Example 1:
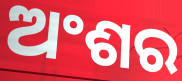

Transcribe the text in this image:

ଅଂଶର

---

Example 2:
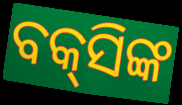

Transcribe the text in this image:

ବକ୍‌ସିଙ୍କ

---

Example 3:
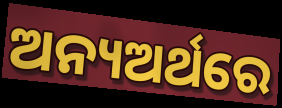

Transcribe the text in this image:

ଅନ୍ୟଅର୍ଥରେ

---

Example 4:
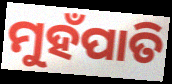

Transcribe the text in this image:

ମୁହଁପାତି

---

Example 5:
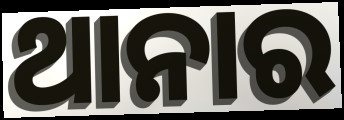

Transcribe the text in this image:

ଥାନାର